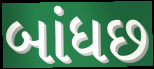
બાંધછ